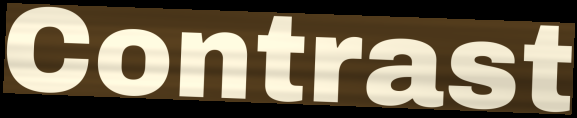
Contrast